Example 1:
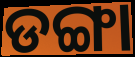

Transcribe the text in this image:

ଡଙ୍ଗା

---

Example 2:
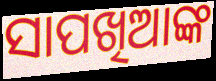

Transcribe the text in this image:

ସାପଖିଆଙ୍କ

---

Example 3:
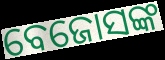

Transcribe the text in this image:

ବେଜୋସଙ୍କ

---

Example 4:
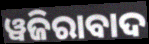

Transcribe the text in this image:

ୱଜିରାବାଦ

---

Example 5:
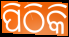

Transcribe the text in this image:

ପିଠିକି